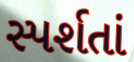
સ્પર્શતાં